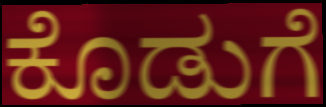
ಕೊಡುಗೆ